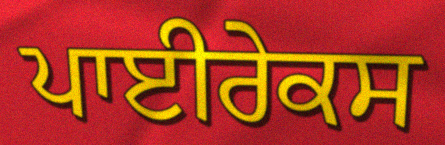
ਪਾਈਰੇਕਸ